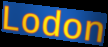
Lodon